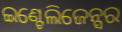
ଇଣ୍ଟେଲିଜେନ୍ସର